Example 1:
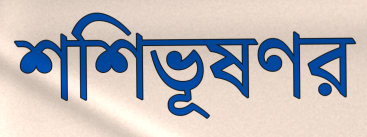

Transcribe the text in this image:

শশিভূষণর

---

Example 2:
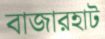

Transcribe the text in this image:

বাজারহাট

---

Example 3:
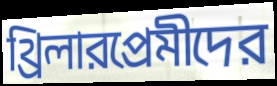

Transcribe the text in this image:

থ্রিলারপ্রেমীদের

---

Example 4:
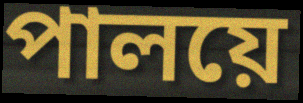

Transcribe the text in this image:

পালয়ে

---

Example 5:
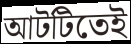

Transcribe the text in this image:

আটটিতেই